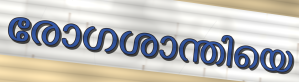
രോഗശാന്തിയെ